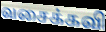
வசைக்கவி